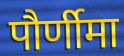
पौर्णीमा